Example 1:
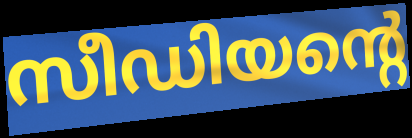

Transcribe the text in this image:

സീഡിയന്റെ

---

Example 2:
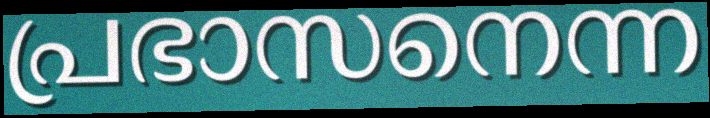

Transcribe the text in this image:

പ്രഭാസനെന്ന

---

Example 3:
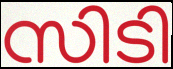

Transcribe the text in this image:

സിടി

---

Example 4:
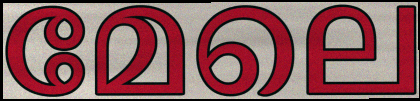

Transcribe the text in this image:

മേലെ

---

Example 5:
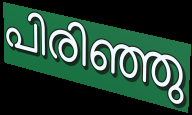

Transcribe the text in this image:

പിരിഞ്ഞു